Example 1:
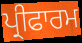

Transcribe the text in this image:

ਪ੍ਰੀਫਾਰਮ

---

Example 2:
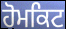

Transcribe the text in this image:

ਹੋਮਕਿਟ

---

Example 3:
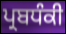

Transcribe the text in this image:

ਪ੍ਰਬਧੰਕੀ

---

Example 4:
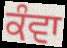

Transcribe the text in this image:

ਕੰਵਾ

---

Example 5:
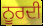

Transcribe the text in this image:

ਨੂਰਦੀ